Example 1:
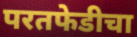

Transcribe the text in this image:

परतफेडीचा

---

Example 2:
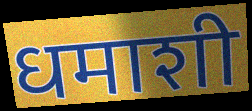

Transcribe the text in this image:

धमाशी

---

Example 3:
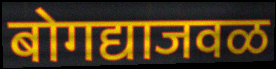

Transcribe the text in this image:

बोगद्याजवळ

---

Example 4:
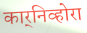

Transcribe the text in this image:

कार्निव्होरा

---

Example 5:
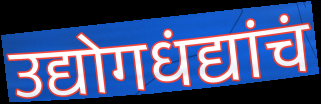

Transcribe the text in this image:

उद्योगधंद्यांचं